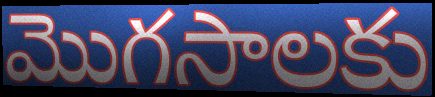
మొగసాలకు